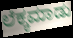
ಲೆಕ್ಕಮಾಡು